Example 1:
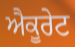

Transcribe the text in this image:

ਐਕੂਰੇਟ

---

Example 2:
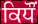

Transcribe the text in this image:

ਕਿਧੌਂ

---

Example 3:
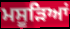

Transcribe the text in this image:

ਮਸੂੜਿਆਂ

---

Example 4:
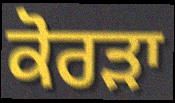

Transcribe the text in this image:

ਕੋਰੜਾ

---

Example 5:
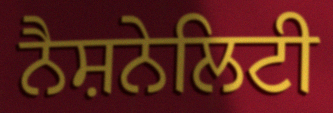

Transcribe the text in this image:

ਨੈਸ਼ਨੇਲਿਟੀ